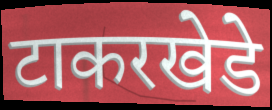
टाकरखेडे